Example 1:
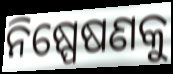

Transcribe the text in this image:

ନିଷ୍ପେଷଣକୁ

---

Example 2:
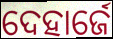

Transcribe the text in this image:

ଦେହାର୍ଜେ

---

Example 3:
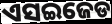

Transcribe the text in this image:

ଏସଇଜେଡ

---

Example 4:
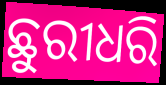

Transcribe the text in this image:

ଛୁରୀଧରି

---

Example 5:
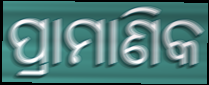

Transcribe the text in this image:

ପ୍ରାମାଣିକ